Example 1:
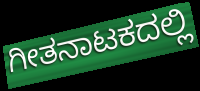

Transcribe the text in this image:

ಗೀತನಾಟಕದಲ್ಲಿ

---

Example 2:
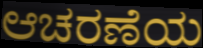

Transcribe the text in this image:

ಆಚರಣೆಯ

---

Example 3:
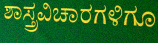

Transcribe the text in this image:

ಶಾಸ್ತ್ರವಿಚಾರಗಳಿಗೂ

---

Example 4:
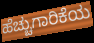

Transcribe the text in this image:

ಹೆಚ್ಚುಗಾರಿಕೆಯ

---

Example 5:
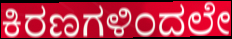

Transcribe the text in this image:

ಕಿರಣಗಳಿಂದಲೇ